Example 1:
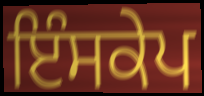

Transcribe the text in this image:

ਇੰਸਕੇਪ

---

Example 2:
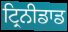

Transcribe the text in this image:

ਟ੍ਰਿਨੀਡਾਡ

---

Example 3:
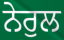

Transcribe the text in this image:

ਨੇਰੁਲ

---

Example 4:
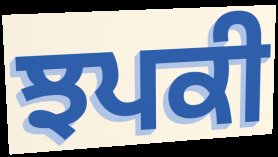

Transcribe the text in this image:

ਝਪਕੀ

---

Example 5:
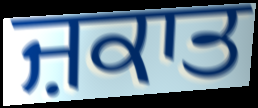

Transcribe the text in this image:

ਜ਼ਕਾਤ